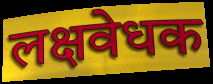
लक्षवेधक